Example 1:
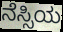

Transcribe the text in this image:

ನೆಸ್ಸಿಯ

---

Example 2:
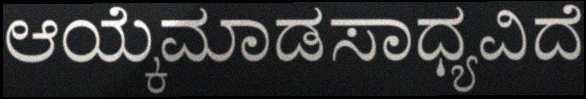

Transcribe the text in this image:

ಆಯ್ಕೆಮಾಡಸಾಧ್ಯವಿದೆ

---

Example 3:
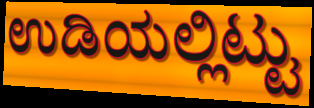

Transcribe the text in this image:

ಉಡಿಯಲ್ಲಿಟ್ಟು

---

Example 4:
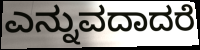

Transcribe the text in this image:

ಎನ್ನುವದಾದರೆ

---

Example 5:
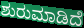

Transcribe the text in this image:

ಶುರುಮಾಡಿದೆ